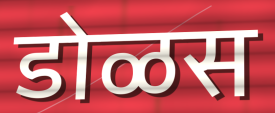
डोळस